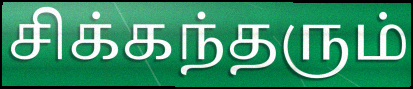
சிக்கந்தரும்